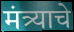
मंत्र्याचे